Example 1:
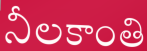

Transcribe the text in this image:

నీలకాంతి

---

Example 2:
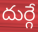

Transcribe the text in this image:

దుర్గే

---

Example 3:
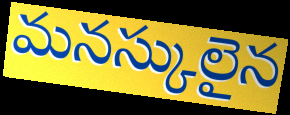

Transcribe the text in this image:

మనస్కులైన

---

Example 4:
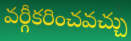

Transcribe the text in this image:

వర్గీకరించవచ్చు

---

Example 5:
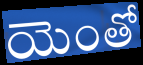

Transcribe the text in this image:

యెంతో